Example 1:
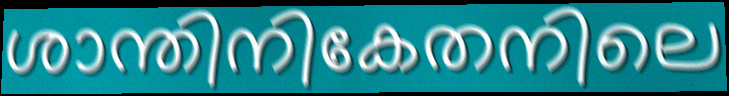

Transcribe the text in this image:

ശാന്തിനികേതനിലെ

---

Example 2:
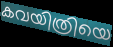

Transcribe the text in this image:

കവയിത്രിയെ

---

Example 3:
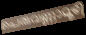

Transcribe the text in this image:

പെരുവണ്ണാമൂഴി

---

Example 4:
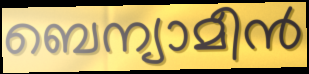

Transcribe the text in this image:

ബെന്യാമീൻ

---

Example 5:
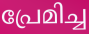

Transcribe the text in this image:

പ്രേമിച്ച